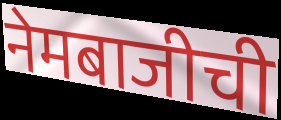
नेमबाजीची